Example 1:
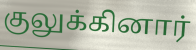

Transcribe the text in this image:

குலுக்கினார்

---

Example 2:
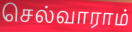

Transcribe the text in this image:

செல்வாராம்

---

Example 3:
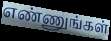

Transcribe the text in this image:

எண்ணுங்கள்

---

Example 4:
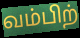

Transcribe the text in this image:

வம்பிற்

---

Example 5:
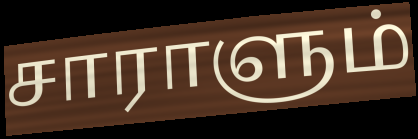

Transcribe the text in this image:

சாராளும்